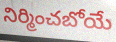
నిర్మించబోయే